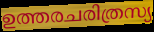
ഉത്തരചരിത്രസ്യ